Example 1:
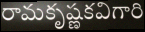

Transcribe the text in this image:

రామకృష్ణకవిగారి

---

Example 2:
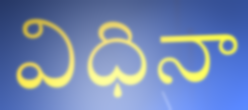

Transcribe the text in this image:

విధినా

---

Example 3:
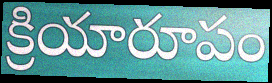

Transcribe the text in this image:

క్రియారూపం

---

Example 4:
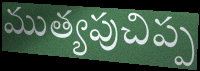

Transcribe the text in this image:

ముత్యపుచిప్ప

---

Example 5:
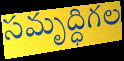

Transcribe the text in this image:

సమృద్ధిగల